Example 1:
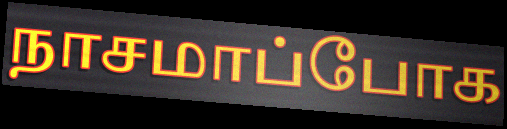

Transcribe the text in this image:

நாசமாப்போக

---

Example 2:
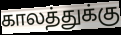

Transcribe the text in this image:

காலத்துக்கு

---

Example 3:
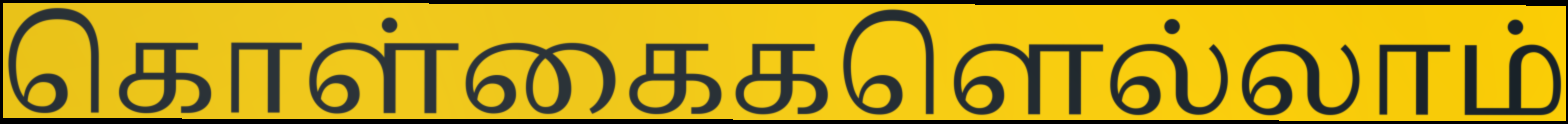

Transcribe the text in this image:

கொள்கைகளெல்லாம்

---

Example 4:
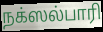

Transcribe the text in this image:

நக்ஸல்பாரி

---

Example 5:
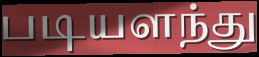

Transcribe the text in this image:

படியளந்து